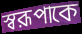
স্বরূপাকে